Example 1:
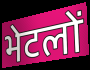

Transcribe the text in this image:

भेटलों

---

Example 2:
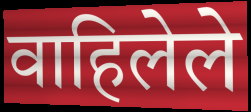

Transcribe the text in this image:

वाहिलेले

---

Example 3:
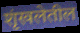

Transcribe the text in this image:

शृंखलेतील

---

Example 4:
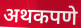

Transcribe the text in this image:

अथकपणे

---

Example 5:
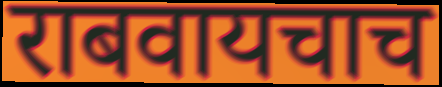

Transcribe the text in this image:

राबवायचाच